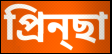
প্রিন্ছা